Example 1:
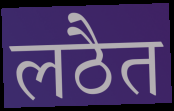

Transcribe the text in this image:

लठैत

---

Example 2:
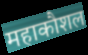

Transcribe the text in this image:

महाकौशल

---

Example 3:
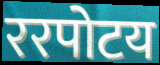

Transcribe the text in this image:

ररपोटय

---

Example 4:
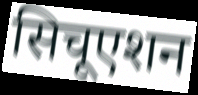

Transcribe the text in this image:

सिचूएशन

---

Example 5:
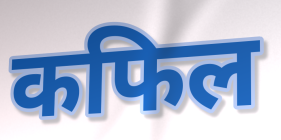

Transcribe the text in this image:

कफिल